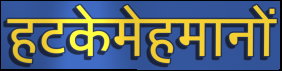
हटकेमेहमानों